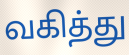
வகித்து